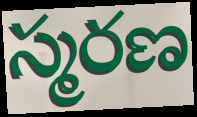
స్మరణ